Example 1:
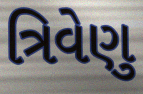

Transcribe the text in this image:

ત્રિવેણુ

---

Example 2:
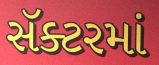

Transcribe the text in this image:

સૅક્ટરમાં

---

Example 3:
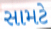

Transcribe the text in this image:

સામટે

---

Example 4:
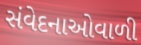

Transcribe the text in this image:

સંવેદનાઓવાળી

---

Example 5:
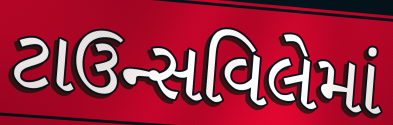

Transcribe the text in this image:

ટાઉન્સવિલેમાં